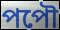
পপৌ